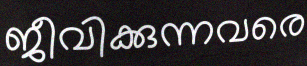
ജീവിക്കുന്നവരെ